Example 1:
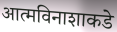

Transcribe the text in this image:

आत्मविनाशाकडे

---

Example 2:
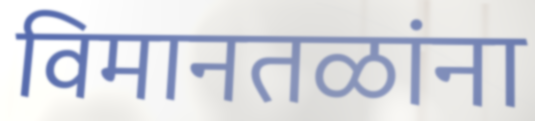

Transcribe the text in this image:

विमानतळांना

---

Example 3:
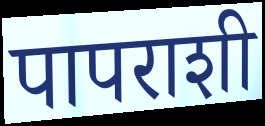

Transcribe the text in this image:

पापराशी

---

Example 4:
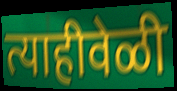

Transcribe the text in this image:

त्याहीवेळी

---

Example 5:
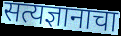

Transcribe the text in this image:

सत्यज्ञानाचा